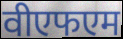
वीएफएम